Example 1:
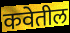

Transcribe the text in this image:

कवेतील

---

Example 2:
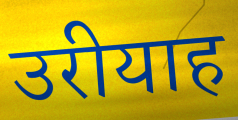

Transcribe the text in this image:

उरीयाह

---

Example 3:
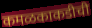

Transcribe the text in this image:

कमळकाकडीची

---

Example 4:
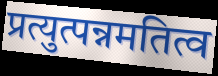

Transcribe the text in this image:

प्रत्युत्पन्नमतित्व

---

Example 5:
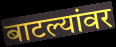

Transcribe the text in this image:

बाटल्यांवर